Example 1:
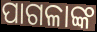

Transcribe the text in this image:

ପାଗଳାଙ୍କ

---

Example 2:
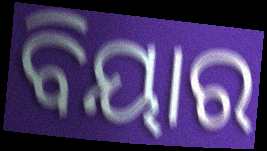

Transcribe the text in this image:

ବିୟାର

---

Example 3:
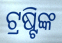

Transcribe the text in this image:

ଟ୍ରଷ୍ଟିଙ୍କ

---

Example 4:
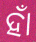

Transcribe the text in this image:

ହାଁ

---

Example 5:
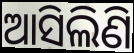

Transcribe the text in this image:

ଆସିଲିଣି